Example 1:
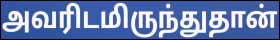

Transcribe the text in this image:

அவரிடமிருந்துதான்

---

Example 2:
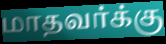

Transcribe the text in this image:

மாதவர்க்கு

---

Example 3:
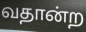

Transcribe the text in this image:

வதான்ற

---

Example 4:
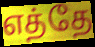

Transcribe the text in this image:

எத்தே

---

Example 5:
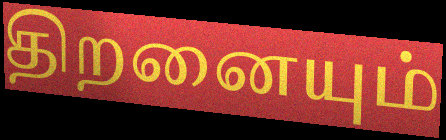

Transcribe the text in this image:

திறனையும்